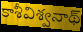
కాశీవిశ్వనాథ్